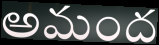
అమంద